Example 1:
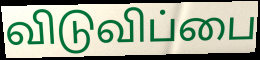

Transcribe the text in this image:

விடுவிப்பை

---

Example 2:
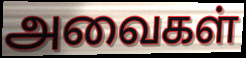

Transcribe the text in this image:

அவைகள்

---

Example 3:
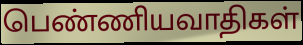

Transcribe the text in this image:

பெண்ணியவாதிகள்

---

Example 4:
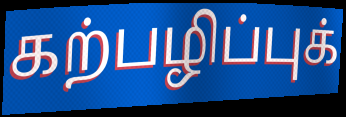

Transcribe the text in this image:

கற்பழிப்புக்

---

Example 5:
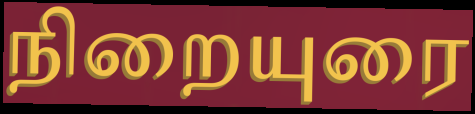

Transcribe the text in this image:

நிறையுரை